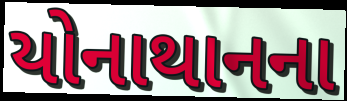
યોનાથાનના